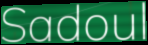
Sadoul